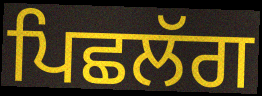
ਪਿਛਲੱਗ